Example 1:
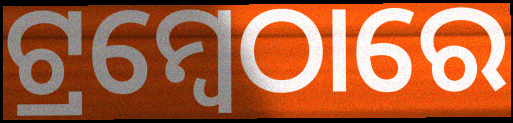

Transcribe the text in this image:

ଟ୍ରମ୍ବେଠାରେ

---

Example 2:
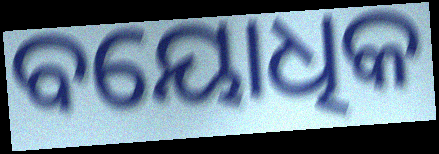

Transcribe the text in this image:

ବୟୋଧିକ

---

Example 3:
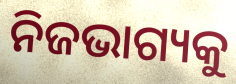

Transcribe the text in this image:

ନିଜଭାଗ୍ୟକୁ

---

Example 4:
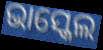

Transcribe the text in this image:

ଭାସ୍କେଲ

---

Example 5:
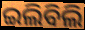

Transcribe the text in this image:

ଇଲିବିଲି